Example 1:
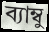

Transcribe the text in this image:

ব্যাম্বু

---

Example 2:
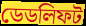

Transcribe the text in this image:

ডেডলিফট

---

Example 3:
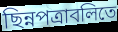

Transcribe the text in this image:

ছিন্নপত্রাবলিতে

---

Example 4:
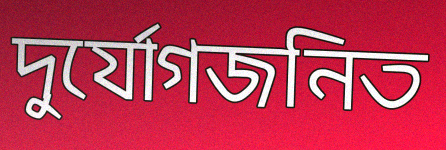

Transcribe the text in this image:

দুর্যোগজনিত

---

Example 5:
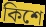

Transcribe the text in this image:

কিশে